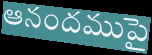
ఆనందముపై